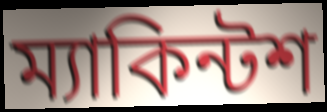
ম্যাকিন্টশ